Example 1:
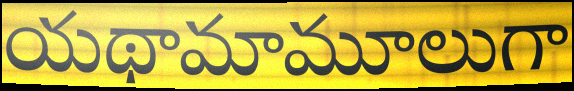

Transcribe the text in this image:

యథామామూలుగా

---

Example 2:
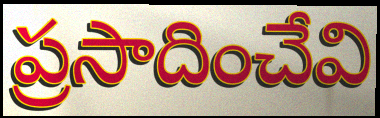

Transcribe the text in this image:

ప్రసాదించేవి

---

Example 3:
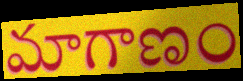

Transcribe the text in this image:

మాగాణం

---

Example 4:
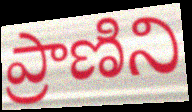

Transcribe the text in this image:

ప్రాణిని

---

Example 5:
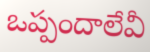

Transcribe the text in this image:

ఒప్పందాలేవీ